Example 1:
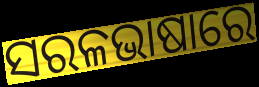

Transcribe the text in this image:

ସରଳଭାଷାରେ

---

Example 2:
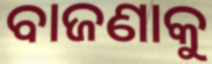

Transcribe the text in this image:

ବାଜଣାକୁ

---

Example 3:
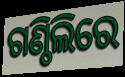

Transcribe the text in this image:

ଗଣ୍ଠିଲିରେ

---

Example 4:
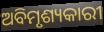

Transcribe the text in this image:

ଅବିମୃଶ୍ୟକାରୀ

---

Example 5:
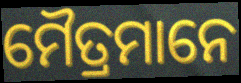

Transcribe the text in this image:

ମୈତ୍ରମାନେ